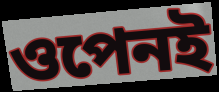
ওপেনই